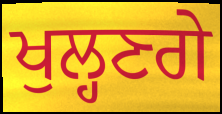
ਖੁਲ੍ਹਣਗੇ